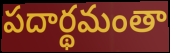
పదార్థమంతా